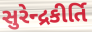
સુરેન્દ્રકીર્તિ